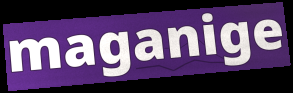
maganige